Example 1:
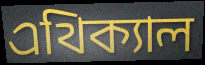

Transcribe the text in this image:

এথিক্যাল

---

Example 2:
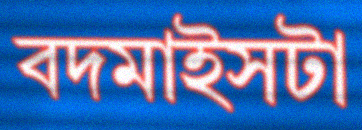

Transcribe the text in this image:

বদমাইসটা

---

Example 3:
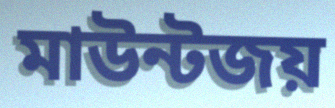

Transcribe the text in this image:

মাউন্টজয়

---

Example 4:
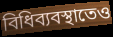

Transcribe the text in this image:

বিধিব্যবস্থাতেও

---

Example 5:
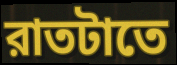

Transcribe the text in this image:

রাতটাতে